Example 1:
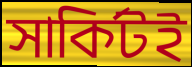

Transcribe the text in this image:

সার্কিটই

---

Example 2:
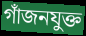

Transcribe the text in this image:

গাঁজনযুক্ত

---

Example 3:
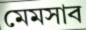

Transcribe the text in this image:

মেমসাব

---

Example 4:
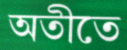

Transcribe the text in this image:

অতীতে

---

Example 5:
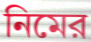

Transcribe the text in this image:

নিমের